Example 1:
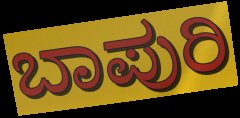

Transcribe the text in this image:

ಬಾಪುರಿ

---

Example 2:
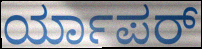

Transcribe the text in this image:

ರ್ಯಾಪರ್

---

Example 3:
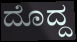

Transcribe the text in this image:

ದೊದ್ದ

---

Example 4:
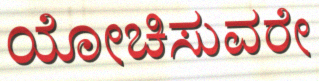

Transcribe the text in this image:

ಯೋಚಿಸುವರೇ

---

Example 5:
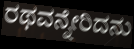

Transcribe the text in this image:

ರಥವನ್ನೇರಿದನು